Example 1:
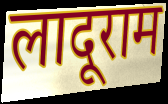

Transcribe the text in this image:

लादूराम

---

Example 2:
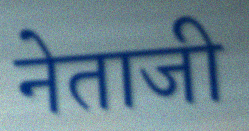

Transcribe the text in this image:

नेताजी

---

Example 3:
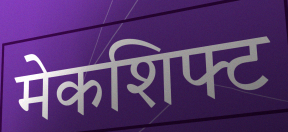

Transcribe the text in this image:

मेकशिफ्ट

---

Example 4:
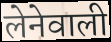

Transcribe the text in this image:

लेनेवाली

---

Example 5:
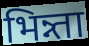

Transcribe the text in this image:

भिन्न्ता